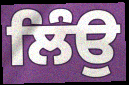
ਲਿੰਉ